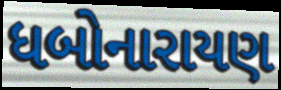
ધબોનારાયણ